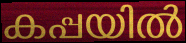
കപ്പയിൽ